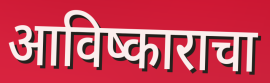
आविष्काराचा